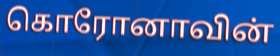
கொரோனாவின்